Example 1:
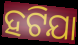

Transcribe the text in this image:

ହଟିଯା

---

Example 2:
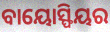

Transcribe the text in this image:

ବାୟୋସ୍ଫିୟର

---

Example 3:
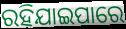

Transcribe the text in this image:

ରହିଯାଇପାରେ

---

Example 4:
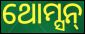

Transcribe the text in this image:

ଥୋମ୍ସନ୍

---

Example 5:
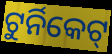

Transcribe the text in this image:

ଟୁର୍ନିକେଟ୍